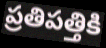
ప్రతిపత్తికి